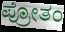
ಪ್ರೋತಂ